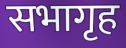
सभागृह